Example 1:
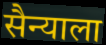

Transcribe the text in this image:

सैन्याला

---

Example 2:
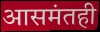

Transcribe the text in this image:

आसमंतही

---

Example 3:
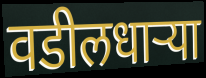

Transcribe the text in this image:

वडीलधाऱ्या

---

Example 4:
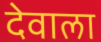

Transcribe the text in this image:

देवाला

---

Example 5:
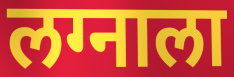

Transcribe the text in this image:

लग्नाला